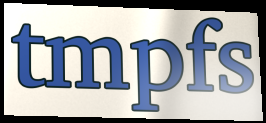
tmpfs